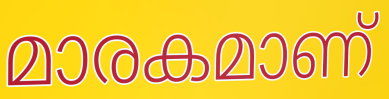
മാരകമാണ്